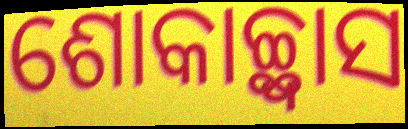
ଶୋକାଚ୍ଛ୍ୱାସ